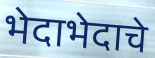
भेदाभेदाचे